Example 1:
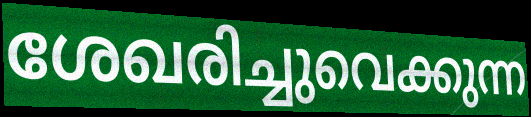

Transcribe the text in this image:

ശേഖരിച്ചുവെക്കുന്ന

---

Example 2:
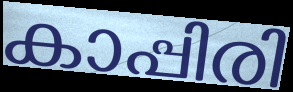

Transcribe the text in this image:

കാപ്പിരി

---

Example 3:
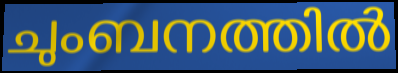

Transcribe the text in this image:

ചുംബനത്തിൽ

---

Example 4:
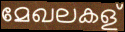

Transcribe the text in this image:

മേഖലകള്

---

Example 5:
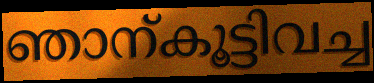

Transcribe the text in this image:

ഞാന്കൂട്ടിവച്ച